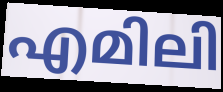
എമിലി